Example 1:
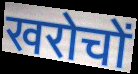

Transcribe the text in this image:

खरोचों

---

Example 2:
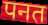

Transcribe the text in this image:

पनत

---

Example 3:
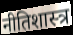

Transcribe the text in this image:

नीतिशास्त्र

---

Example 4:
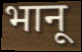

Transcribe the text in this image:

भानू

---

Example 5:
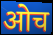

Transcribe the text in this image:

ओच